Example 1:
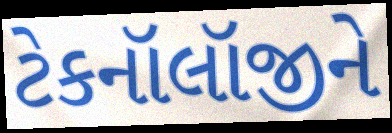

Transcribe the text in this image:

ટેકનૉલૉજીને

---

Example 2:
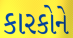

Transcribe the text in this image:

કારકોને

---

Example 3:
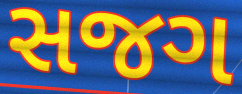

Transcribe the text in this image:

સજગ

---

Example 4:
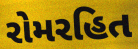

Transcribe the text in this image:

રોમરહિત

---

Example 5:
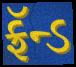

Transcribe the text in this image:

ફ્રૅન્ડ